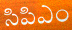
సిపిఎం